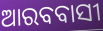
ଆରବବାସୀ